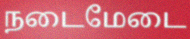
நடைமேடை